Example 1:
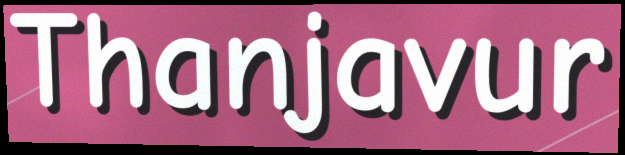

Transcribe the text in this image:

Thanjavur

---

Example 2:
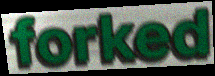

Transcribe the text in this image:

forked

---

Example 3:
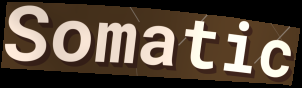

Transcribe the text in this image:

Somatic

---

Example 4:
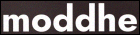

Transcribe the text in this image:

moddhe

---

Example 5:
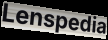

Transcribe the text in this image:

Lenspedia